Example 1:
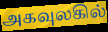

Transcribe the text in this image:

அகவுலகில்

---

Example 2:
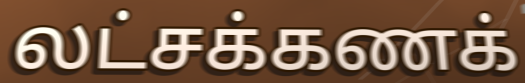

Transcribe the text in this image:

லட்சக்கணக்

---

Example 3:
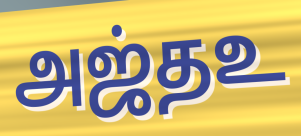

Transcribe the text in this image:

அஜ்தஉ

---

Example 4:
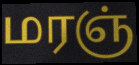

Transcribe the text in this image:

மரஞ்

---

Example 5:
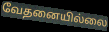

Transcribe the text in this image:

வேதனையில்லை